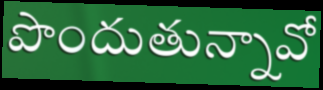
పొందుతున్నావో